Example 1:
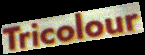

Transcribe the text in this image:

Tricolour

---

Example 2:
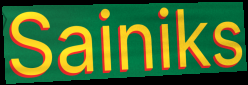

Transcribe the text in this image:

Sainiks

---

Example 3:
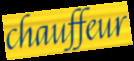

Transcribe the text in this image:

chauffeur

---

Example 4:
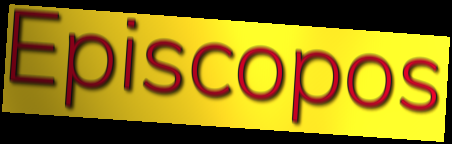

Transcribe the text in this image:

Episcopos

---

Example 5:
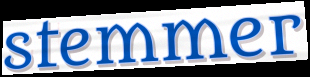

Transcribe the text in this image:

stemmer